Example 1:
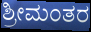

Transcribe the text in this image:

ಶ್ರೀಮಂತರ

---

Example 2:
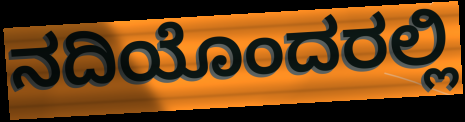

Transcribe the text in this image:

ನದಿಯೊಂದರಲ್ಲಿ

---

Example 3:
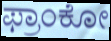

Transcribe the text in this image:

ಫ್ರಾಂಕೋ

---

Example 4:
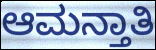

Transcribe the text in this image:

ಆಮನ್ತಾತಿ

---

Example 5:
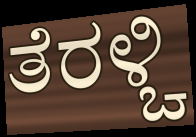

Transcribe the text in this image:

ತೆರಳ್ಚಿ